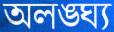
অলঙ্ঘ্য